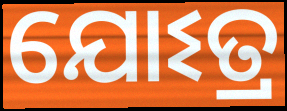
ଯୋଽତ୍ର